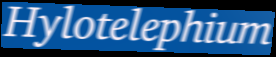
Hylotelephium